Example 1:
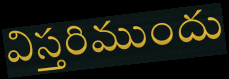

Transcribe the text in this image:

విస్తరిముందు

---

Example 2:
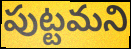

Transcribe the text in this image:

పుట్టమని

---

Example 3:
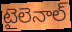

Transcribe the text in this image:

టైలెనాల్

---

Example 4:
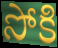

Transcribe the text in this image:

సోకి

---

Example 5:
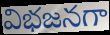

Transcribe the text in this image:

విభజనగా